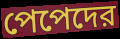
পেপেদের